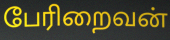
பேரிறைவன்